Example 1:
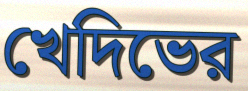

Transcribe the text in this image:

খেদিভের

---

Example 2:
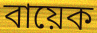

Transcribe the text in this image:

বায়েক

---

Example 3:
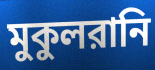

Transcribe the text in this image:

মুকুলরানি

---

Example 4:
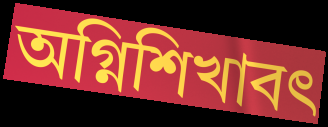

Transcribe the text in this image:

অগ্নিশিখাবৎ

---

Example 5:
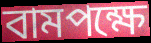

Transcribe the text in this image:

বামপক্ষে